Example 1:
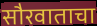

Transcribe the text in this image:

सौरवाताचा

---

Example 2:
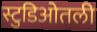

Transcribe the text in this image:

स्टुडिओतली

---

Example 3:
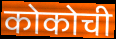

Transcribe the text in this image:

कोकोची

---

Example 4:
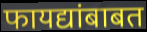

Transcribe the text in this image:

फायद्यांबाबत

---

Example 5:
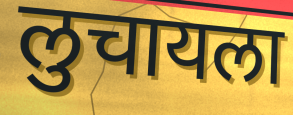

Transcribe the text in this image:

लुचायला